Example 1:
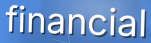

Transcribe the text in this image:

financial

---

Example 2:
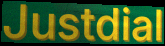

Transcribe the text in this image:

Justdial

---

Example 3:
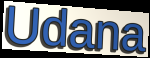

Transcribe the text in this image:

Udana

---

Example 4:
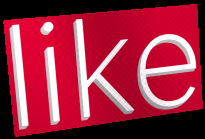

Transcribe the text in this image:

like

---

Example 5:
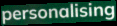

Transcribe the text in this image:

personalising